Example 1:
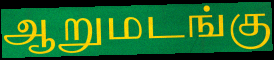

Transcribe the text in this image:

ஆறுமடங்கு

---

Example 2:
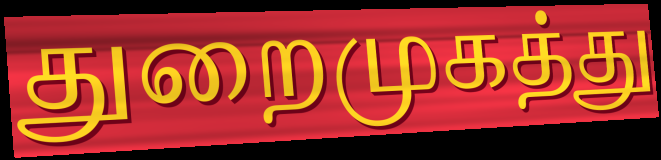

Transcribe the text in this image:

துறைமுகத்து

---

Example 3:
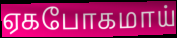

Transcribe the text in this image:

ஏகபோகமாய்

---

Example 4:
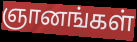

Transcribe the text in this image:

ஞானங்கள்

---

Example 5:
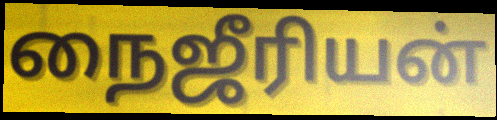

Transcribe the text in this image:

நைஜீரியன்